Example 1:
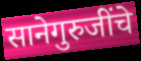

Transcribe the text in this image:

सानेगुरुजींचे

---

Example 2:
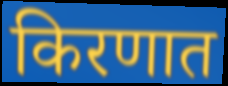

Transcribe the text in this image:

किरणात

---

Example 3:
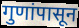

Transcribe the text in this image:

गुणांपासून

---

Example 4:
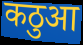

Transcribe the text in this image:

कठुआ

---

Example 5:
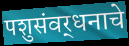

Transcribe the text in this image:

पशुसंवर्धनाचे